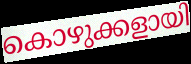
കൊഴുക്കളായി